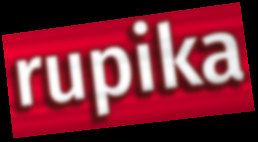
rupika